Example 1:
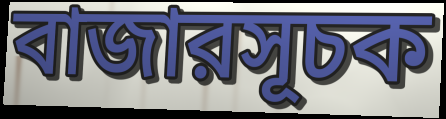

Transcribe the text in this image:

বাজারসূচক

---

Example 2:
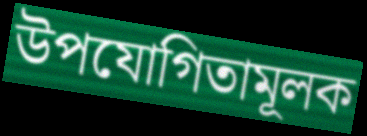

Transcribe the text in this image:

উপযোগিতামূলক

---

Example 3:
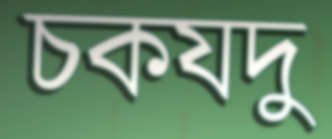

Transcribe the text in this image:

চকযদু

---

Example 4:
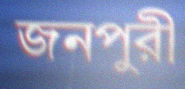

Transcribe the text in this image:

জনপুরী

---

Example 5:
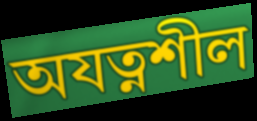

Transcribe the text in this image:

অযত্নশীল